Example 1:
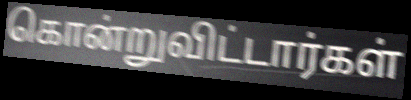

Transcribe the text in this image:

கொன்றுவிட்டார்கள்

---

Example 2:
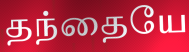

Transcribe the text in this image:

தந்தையே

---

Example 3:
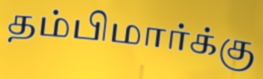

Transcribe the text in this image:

தம்பிமார்க்கு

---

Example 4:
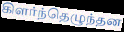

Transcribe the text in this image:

கிளர்ந்தெழுந்தன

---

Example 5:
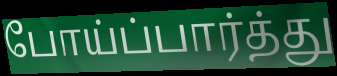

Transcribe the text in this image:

போய்ப்பார்த்து